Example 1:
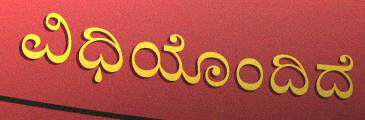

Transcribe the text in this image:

ವಿಧಿಯೊಂದಿದೆ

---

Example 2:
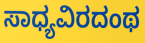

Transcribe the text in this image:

ಸಾಧ್ಯವಿರದಂಥ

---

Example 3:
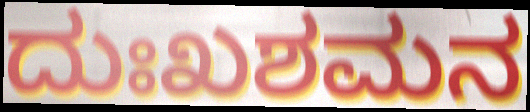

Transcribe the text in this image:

ದುಃಖಶಮನ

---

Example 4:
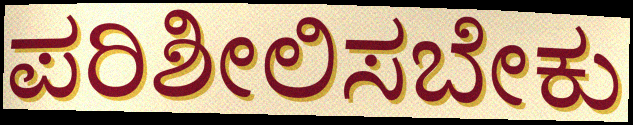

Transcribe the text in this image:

ಪರಿಶೀಲಿಸಬೇಕು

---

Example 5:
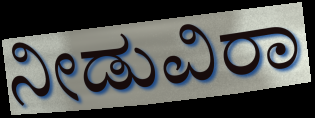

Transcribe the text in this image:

ನೀಡುವಿರಾ